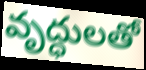
వృద్ధులతో